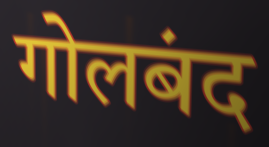
गोलबंद